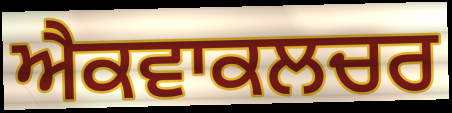
ਐਕਵਾਕਲਚਰ